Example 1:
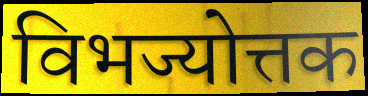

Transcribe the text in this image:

विभज्योत्तक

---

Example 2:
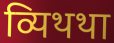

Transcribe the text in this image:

व्यिथथा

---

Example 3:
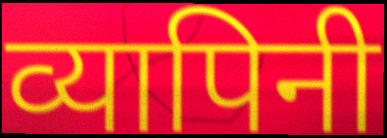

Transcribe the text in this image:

व्यापिनी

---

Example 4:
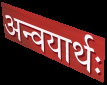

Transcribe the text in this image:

अन्वयार्थः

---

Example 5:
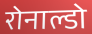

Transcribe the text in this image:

रोनाल्डो